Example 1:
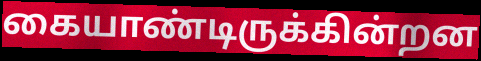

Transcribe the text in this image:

கையாண்டிருக்கின்றன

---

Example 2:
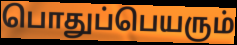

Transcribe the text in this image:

பொதுப்பெயரும்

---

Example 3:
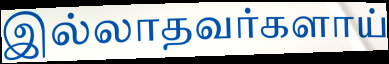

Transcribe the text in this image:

இல்லாதவர்களாய்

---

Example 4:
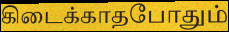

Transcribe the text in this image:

கிடைக்காதபோதும்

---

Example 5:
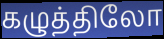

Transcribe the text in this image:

கழுத்திலோ